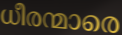
ധീരന്മാരെ